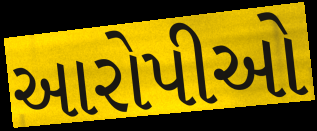
આરોપીઓ